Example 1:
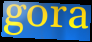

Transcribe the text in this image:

gora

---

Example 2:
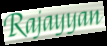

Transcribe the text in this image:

Rajayyan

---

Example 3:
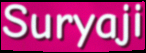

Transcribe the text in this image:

Suryaji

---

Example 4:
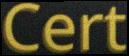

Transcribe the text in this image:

Cert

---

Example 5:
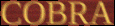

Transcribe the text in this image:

COBRA